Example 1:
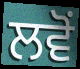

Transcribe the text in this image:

ਲਵੋਂ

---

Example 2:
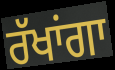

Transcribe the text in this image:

ਰੱਖਾਂਗਾ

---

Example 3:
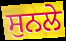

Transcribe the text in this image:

ਸੁਨਲੇ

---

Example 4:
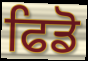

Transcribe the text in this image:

ਫਿਡੋ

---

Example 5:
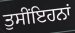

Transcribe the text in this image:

ਤੁਸੀਂਇਹਨਾਂ